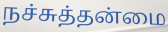
நச்சுத்தன்மை